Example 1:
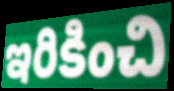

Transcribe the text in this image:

ఇరికించి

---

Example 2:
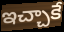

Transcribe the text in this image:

ఇచ్చాకే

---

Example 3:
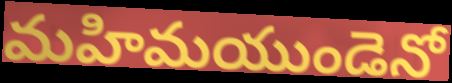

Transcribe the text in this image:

మహిమయుండెనో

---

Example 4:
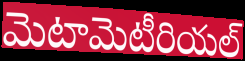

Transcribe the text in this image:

మెటామెటీరియల్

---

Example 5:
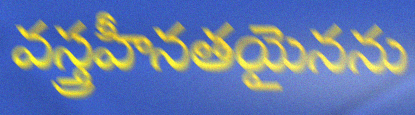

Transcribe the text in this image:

వస్త్రహీనతయైనను